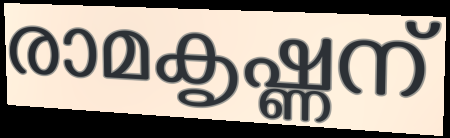
രാമകൃഷ്ണന്